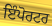
ਇੰਪੋਰਟਰ